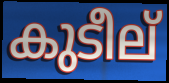
കുടീല്